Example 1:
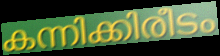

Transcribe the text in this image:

കന്നിക്കിരീടം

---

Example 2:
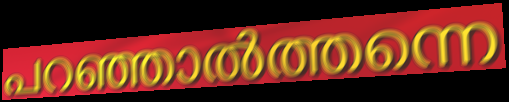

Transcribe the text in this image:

പറഞ്ഞാൽത്തന്നെ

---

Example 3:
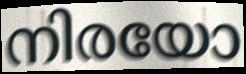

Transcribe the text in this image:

നിരയോ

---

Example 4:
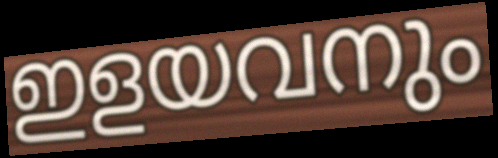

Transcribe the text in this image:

ഇളയവനും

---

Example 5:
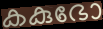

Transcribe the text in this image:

കകുഭോ